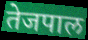
तेजपाल